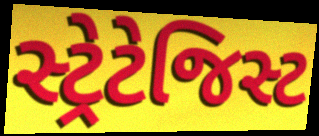
સ્ટ્રેટેજિસ્ટ